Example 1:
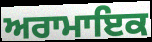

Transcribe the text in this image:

ਅਰਾਮਾਇਕ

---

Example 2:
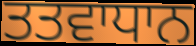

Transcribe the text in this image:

ਤਤਵਾਧਾਨ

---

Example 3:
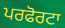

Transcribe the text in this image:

ਪਰਫੋਰਟਾ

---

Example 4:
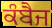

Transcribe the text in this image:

ਕੰਬੈਜ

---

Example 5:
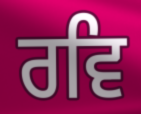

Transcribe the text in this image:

ਰਵਿ